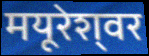
मयूरेश्वर